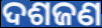
ଦଶଜଣ